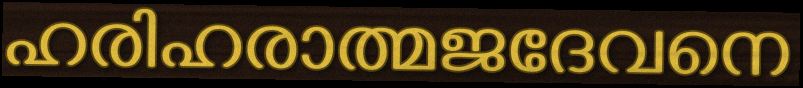
ഹരിഹരാത്മജദേവനെ